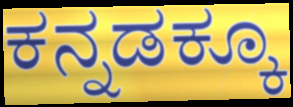
ಕನ್ನಡಕ್ಕೂ